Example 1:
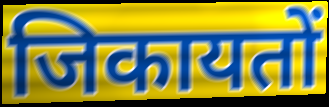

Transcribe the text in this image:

जिकायतों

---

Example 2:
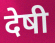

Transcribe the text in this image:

देषी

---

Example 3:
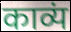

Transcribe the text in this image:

काव्यं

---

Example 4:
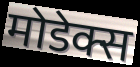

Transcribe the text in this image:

मोडेक्स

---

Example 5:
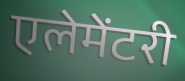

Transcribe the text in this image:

एलेमेंटरी